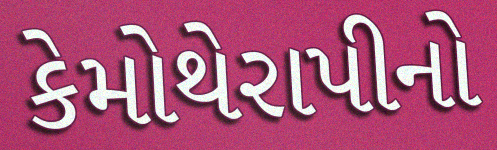
કેમોથેરાપીનો